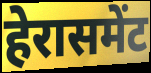
हेरासमेंट